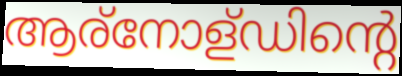
ആര്നോള്ഡിന്റെ